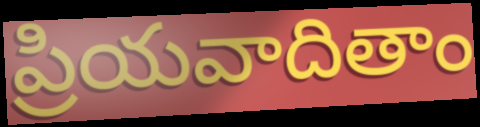
ప్రియవాదితాం